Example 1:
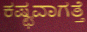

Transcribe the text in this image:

ಕಷ್ಟವಾಗತ್ತೆ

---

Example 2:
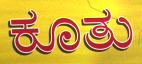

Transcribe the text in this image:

ಕೂತು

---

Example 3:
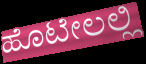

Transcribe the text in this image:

ಹೊಟೇಲಲ್ಲಿ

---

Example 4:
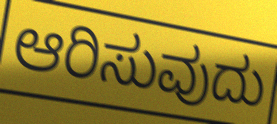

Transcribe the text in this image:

ಆರಿಸುವುದು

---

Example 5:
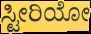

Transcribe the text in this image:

ಸ್ಟೀರಿಯೋ